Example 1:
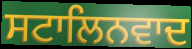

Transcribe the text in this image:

ਸਟਾਲਿਨਵਾਦ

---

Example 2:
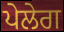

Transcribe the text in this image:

ਪੇਲੇਗ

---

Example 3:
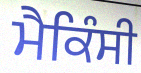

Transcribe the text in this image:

ਮੈਕਿੰਸੀ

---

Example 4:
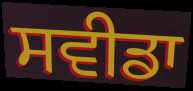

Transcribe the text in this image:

ਸਵੀਡਾ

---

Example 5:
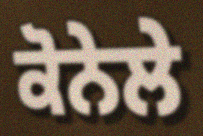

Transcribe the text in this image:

ਕੋਨੇਲੇ